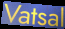
Vatsal